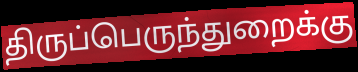
திருப்பெருந்துறைக்கு